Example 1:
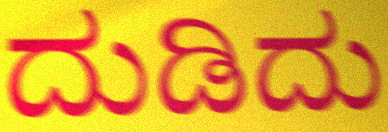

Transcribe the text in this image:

ದುಡಿದು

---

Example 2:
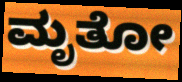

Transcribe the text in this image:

ಮೃತೋ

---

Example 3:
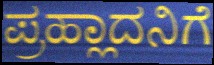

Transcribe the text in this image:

ಪ್ರಹ್ಲಾದನಿಗೆ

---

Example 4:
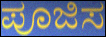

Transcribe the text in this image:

ಪೂಜಿಸ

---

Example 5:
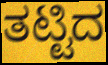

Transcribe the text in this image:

ತಟ್ಟಿದ